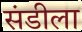
संडीला